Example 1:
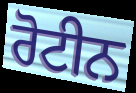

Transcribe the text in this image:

ਰੋਟੀਨ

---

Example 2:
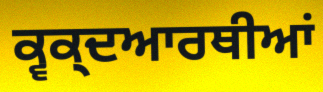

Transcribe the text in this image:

ਕ੍ਵਕ੍ਦਆਰਥੀਆਂ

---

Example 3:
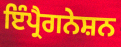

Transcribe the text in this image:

ਇੰਪ੍ਰੈਗਨੇਸ਼ਨ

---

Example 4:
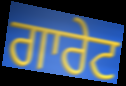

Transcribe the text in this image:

ਗਾਰੇਟ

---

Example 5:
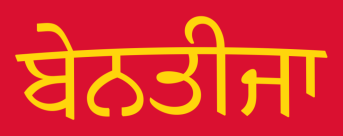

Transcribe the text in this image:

ਬੇਨਤੀਜਾ